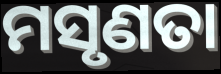
ମସୃଣତା